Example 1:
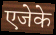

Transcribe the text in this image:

एजेके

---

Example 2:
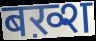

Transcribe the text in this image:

बख़्श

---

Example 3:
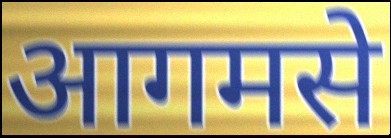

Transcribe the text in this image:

आगमसे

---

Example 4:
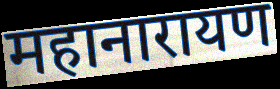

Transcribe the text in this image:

महानारायण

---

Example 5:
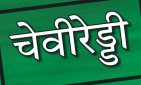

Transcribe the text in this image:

चेवीरेड्डी